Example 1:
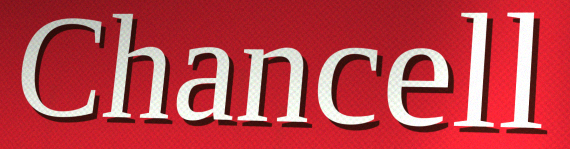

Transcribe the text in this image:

Chancell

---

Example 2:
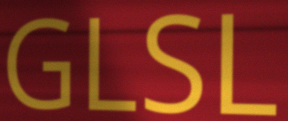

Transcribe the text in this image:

GLSL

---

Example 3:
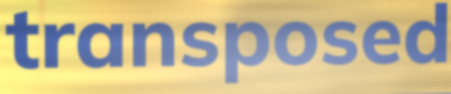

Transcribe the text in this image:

transposed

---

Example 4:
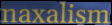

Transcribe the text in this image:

naxalism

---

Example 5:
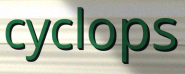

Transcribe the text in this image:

cyclops